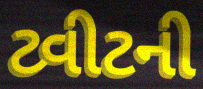
ટ્વીટની